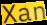
Xan